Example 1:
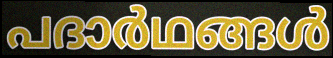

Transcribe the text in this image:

പദാർഥങ്ങൾ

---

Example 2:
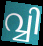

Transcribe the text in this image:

വ്വി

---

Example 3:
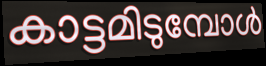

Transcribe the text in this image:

കാട്ടമിടുമ്പോൾ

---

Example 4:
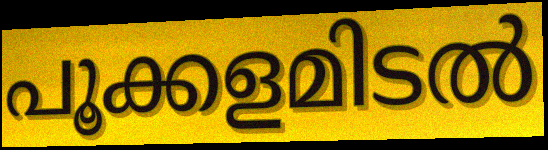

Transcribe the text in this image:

പൂക്കളമിടൽ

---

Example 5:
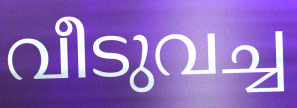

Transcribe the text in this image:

വീടുവച്ച